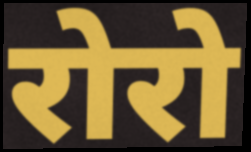
रोरो